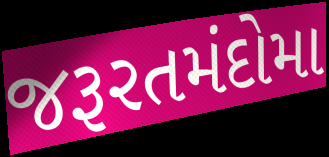
જરૂરતમંદોમા